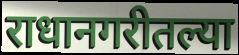
राधानगरीतल्या